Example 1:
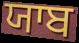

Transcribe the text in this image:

ਯਾਬ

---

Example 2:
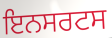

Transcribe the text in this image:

ਇਨਸਰਟਸ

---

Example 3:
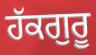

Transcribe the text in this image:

ਹੱਕਗੁਰੂ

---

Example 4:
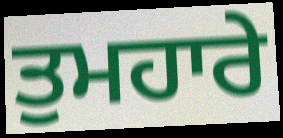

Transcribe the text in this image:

ਤੁਮਹਾਰੇ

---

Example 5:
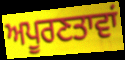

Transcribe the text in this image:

ਅਪੂਰਣਤਾਵਾਂ